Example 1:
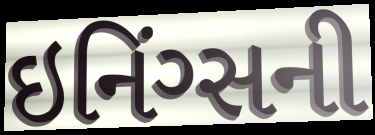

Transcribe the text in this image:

ઇનિંગ્સની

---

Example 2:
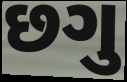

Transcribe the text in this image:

છગુ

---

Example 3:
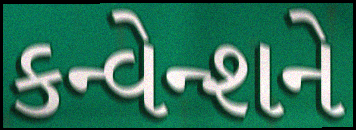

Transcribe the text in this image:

કન્વેન્શને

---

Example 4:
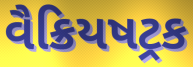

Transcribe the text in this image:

વૈક્રિયષટ્રક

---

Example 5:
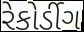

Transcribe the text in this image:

રેકોર્ડીગ